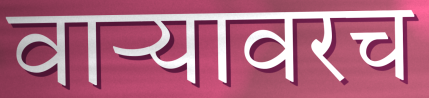
वाऱ्यावरच